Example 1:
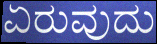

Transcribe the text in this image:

ಏರುವುದು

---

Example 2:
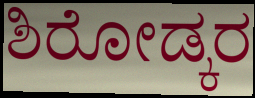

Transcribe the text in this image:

ಶಿರೋಡ್ಕರ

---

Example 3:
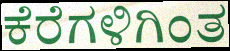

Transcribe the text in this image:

ಕೆರೆಗಳಿಗಿಂತ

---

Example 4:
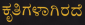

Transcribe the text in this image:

ಕೃತಿಗಳಾಗಿರದೆ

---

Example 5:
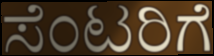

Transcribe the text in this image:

ಸೆಂಟರಿಗೆ